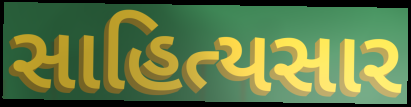
સાહિત્યસાર